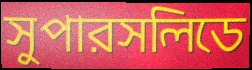
সুপারসলিডে